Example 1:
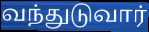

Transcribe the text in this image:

வந்துடுவார்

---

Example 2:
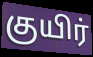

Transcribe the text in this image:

குயிர்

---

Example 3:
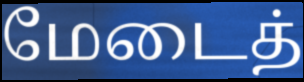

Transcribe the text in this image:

மேடைத்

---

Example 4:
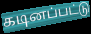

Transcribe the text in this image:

கடினப்பட்டு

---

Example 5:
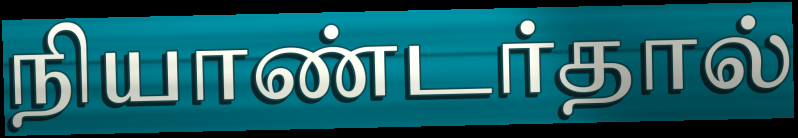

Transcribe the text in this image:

நியாண்டர்தால்